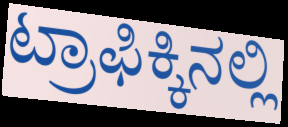
ಟ್ರಾಫಿಕ್ಕಿನಲ್ಲಿ